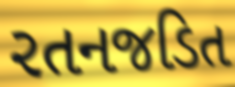
રતનજડિત